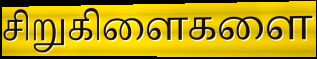
சிறுகிளைகளை